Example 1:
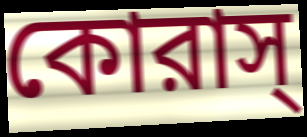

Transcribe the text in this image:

কোরাস্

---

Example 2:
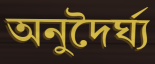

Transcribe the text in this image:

অনুদৈর্ঘ্য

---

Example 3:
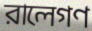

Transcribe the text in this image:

রালেগণ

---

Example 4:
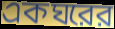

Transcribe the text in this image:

একঘরের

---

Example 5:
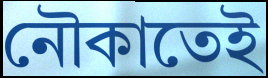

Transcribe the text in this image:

নৌকাতেই